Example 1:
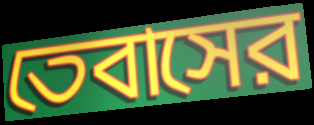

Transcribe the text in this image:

তেবাসের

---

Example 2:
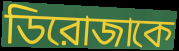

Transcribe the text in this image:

ডিরোজাকে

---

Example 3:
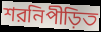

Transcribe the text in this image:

শরনিপীড়িত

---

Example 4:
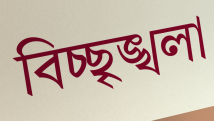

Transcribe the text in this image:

বিচ্ছৃঙ্খলা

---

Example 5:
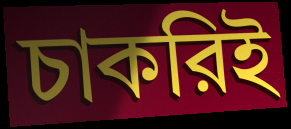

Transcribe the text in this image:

চাকরিই